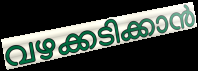
വഴക്കടിക്കാൻ